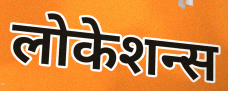
लोकेशन्स